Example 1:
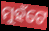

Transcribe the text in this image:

ମୁହଁଟେ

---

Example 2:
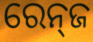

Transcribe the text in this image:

ରେନ୍‍ଜ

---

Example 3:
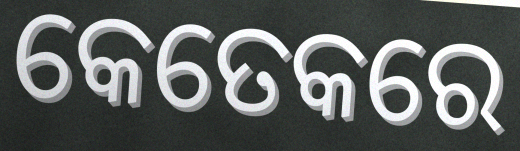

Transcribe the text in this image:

କେତେକରେ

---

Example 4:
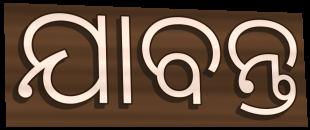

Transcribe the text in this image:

ଯାବନ୍ତ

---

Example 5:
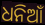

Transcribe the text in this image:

ଧନିଆଁ